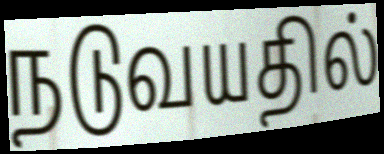
நடுவயதில்